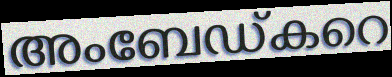
അംബേഡ്കറെ